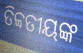
ତିବ୍ବତୀୟଙ୍କ